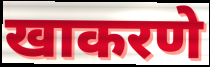
खाकरणे